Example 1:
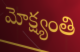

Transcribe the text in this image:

మోక్ష్యంతి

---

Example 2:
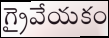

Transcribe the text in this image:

గ్రైవేయకం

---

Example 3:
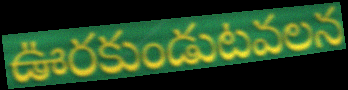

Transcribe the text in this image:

ఊరకుండుటవలన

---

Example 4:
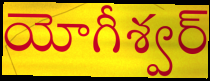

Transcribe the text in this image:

యోగీశ్వర్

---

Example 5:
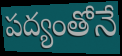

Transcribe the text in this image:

పద్యంతోనే